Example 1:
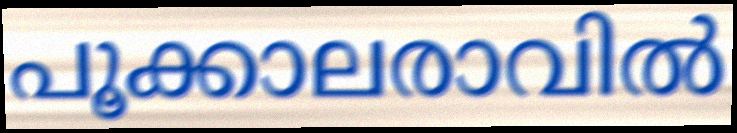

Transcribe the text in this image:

പൂക്കാലരാവിൽ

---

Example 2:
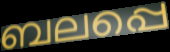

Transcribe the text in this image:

ബലപ്പെ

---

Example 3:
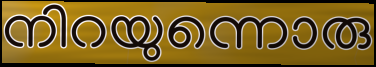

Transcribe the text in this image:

നിറയുന്നൊരു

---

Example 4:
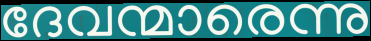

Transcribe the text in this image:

ദേവന്മാരെന്നു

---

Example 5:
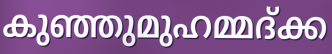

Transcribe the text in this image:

കുഞ്ഞുമുഹമ്മദ്ക്ക